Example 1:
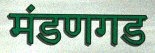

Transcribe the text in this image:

मंडणगड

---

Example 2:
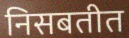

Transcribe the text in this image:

निसबतीत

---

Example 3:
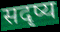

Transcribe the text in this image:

सदृष्य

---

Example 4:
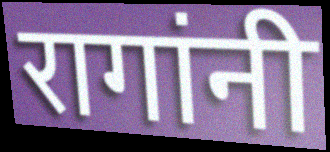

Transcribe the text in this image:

रागांनी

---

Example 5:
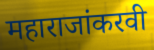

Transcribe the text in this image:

महाराजांकरवी